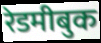
रेडमीबुक